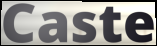
Caste